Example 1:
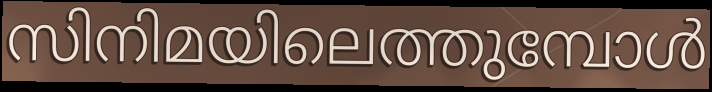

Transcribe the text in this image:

സിനിമയിലെത്തുമ്പോൾ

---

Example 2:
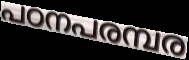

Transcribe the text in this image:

പഠനപരമ്പര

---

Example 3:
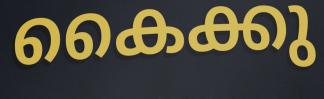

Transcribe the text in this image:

കൈക്കു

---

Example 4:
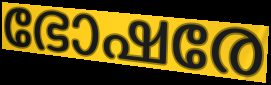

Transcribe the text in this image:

ഭോഷരേ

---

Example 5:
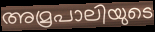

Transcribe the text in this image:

അമ്രപാലിയുടെ